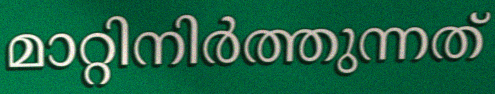
മാറ്റിനിർത്തുന്നത്